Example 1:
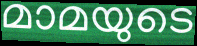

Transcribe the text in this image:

മാമയുടെ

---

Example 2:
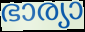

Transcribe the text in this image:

ഭാര്യാ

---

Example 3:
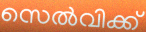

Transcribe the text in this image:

സെൽവിക്ക്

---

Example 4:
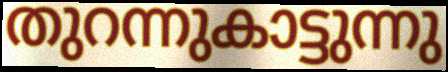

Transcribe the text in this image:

തുറന്നുകാട്ടുന്നു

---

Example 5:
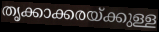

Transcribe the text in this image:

തൃക്കാക്കരയ്ക്കുള്ള